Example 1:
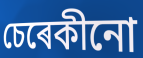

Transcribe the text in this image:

চেৰেকীনো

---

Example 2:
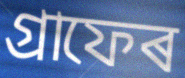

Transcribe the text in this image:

গ্ৰাফেৰ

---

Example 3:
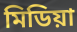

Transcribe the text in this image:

মিডিয়া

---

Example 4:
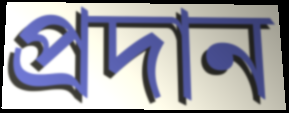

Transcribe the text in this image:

প্ৰদান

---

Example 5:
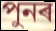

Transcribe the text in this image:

পুনৰ